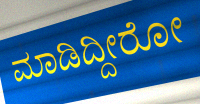
ಮಾಡಿದ್ದೀರೋ